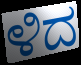
ಳಿದ